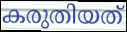
കരുതിയത്